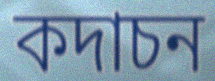
কদাচন